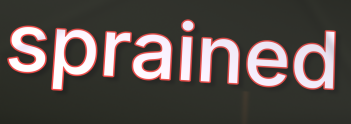
sprained